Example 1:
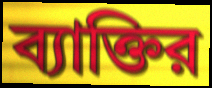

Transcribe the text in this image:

ব্যাক্তির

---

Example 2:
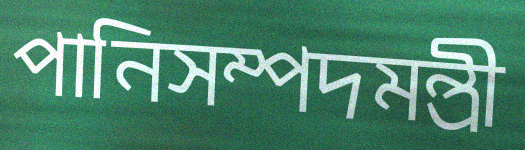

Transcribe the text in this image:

পানিসম্পদমন্ত্রী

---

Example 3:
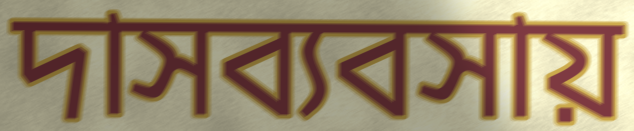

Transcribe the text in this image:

দাসব্যবসায়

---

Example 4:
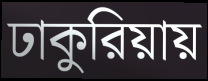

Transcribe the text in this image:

ঢাকুরিয়ায়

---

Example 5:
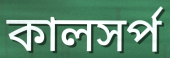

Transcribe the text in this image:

কালসর্প